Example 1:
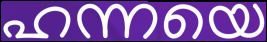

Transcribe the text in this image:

ഹന്നയെ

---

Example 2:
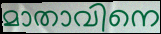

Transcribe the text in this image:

മാതാവിനെ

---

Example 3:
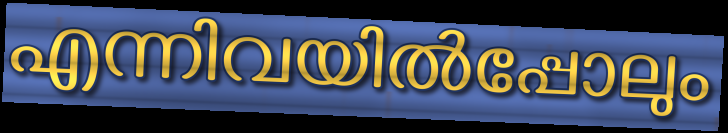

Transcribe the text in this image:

എന്നിവയിൽപ്പോലും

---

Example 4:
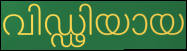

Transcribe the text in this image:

വിഡ്ഢിയായ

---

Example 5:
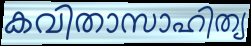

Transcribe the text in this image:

കവിതാസാഹിത്യ